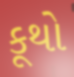
કૂથો